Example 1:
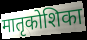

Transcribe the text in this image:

मातृकोशिका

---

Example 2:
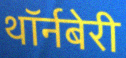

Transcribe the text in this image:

थॉर्नबेरी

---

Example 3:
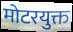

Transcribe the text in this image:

मोटरयुक्त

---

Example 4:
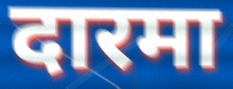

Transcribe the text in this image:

दारमा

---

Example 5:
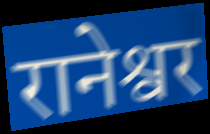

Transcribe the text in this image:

रानेश्वर